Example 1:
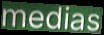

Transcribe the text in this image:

medias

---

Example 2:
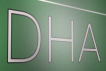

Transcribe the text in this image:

DHA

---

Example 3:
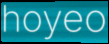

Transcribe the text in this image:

hoyeo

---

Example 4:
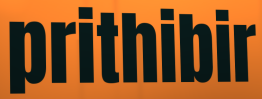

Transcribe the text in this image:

prithibir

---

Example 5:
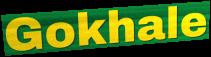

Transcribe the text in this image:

Gokhale